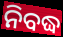
ନିବଦ୍ଧ